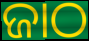
ଜାଠ